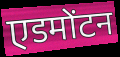
एडमोंटन